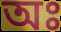
অঃ